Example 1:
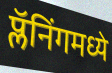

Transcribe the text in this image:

प्लॅनिंगमध्ये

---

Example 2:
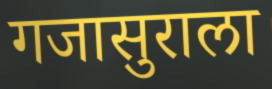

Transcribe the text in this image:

गजासुराला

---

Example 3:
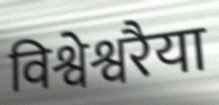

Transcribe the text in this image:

विश्वेश्वरैया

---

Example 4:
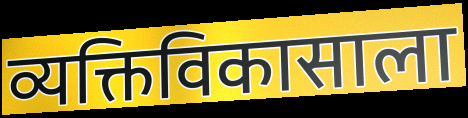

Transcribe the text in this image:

व्यक्तिविकासाला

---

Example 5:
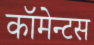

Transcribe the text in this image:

कॉमेन्टस